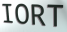
IORT